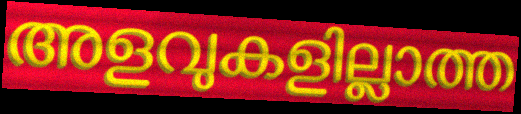
അളവുകളില്ലാത്ത